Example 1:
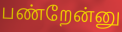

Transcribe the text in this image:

பண்றேன்னு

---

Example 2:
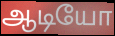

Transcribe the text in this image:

ஆடியோ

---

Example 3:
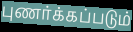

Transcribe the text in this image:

புணர்க்கப்படும்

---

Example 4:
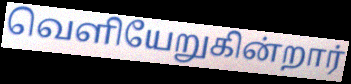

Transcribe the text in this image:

வெளியேறுகின்றார்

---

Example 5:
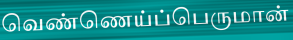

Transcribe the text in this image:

வெண்ணெய்ப்பெருமான்